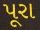
પૂરા